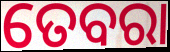
ତେବରା